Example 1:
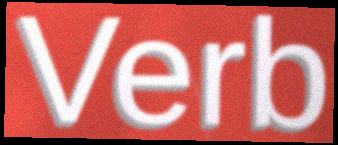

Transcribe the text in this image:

Verb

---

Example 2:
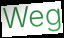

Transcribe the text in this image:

Weg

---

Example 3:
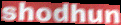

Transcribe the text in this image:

shodhun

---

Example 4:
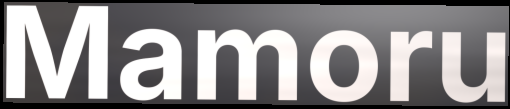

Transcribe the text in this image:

Mamoru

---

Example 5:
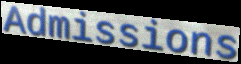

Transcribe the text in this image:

Admissions